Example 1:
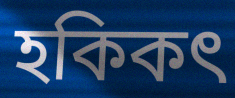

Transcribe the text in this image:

হকিকৎ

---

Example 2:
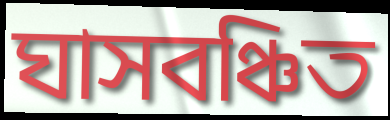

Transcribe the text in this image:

ঘাসবঞ্চিত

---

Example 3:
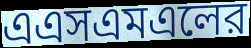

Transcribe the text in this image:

এএসএমএলের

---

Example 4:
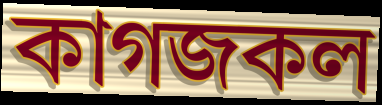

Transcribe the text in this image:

কাগজকল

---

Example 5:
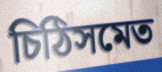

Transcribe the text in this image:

চিঠিসমেত